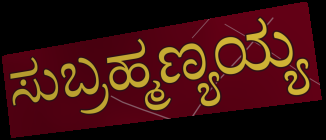
ಸುಬ್ರಹ್ಮಣ್ಯಯ್ಯ